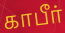
காபீர்